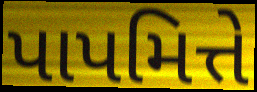
પાપમિત્તે